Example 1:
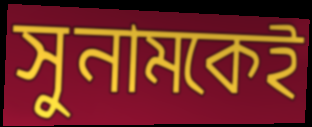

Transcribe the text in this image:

সুনামকেই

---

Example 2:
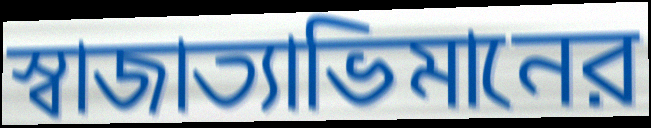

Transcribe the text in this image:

স্বাজাত্যাভিমানের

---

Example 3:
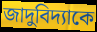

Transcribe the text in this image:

জাদুবিদ্যাকে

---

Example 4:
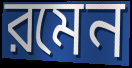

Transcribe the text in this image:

রমেন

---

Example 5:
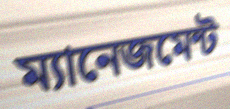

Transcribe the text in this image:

ম্যানেজমেন্ট